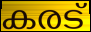
കരട്